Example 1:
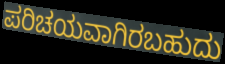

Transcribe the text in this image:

ಪರಿಚಯವಾಗಿರಬಹುದು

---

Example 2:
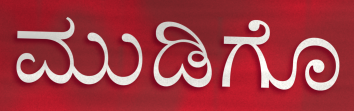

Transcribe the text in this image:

ಮುಡಿಗೊ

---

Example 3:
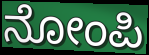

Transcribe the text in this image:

ನೋಂಪಿ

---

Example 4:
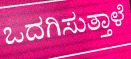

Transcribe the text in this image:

ಒದಗಿಸುತ್ತಾಳೆ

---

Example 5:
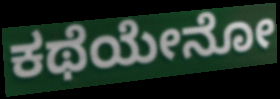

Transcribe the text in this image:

ಕಥೆಯೇನೋ